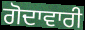
ਗੋਦਾਵਾਰੀ